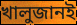
খালুজানই